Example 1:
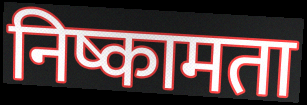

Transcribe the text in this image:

निष्कामता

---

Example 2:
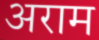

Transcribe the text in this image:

अराम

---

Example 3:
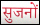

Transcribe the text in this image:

सुजनों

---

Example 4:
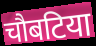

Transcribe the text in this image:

चौबटिया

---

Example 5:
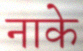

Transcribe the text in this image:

नाके